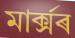
মাৰ্ক্সৰ